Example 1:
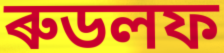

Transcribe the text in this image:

ৰুডলফ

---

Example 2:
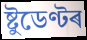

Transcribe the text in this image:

ষ্টুডেণ্টৰ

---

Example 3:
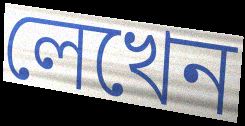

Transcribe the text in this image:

লেখেন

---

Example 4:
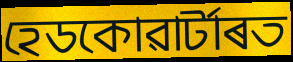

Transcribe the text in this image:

হেডকোৱাৰ্টাৰত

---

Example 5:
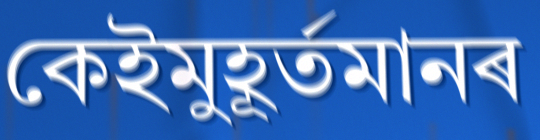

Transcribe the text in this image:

কেইমুহূৰ্তমানৰ